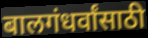
बालगंधर्वांसाठी